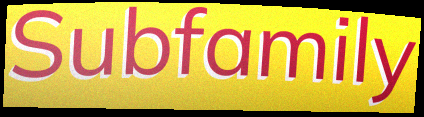
Subfamily